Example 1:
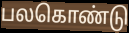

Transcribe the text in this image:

பலகொண்டு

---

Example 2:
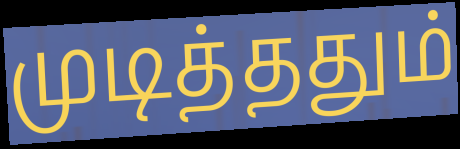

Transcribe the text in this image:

முடித்ததும்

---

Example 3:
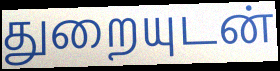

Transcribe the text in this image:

துறையுடன்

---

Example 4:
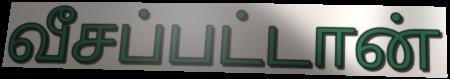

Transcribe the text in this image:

வீசப்பட்டான்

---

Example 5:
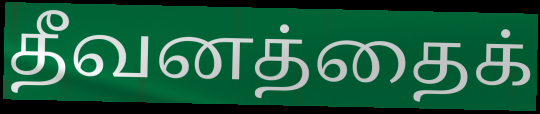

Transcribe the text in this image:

தீவனத்தைக்